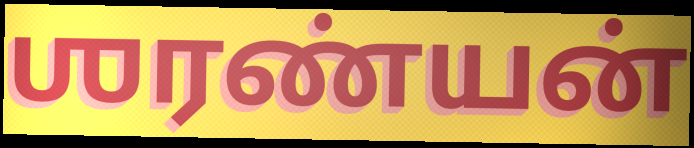
ஶரண்யன்